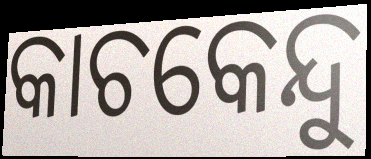
କାଚକେନ୍ଦୁ